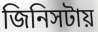
জিনিসটায়